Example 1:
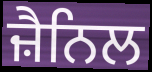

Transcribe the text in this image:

ਜ਼ੈਨਿਲ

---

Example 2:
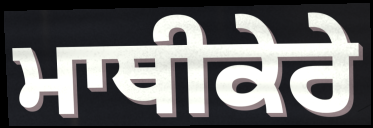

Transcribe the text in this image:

ਮਾਥੀਕੇਰੇ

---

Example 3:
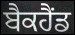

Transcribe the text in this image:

ਬੈਕਹੈਂਡ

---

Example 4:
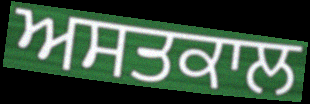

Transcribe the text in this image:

ਅਸਤਕਾਲ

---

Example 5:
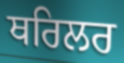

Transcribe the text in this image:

ਥਰਿਲਰ